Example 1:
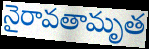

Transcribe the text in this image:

నైరావతామృత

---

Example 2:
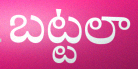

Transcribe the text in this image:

బట్టలా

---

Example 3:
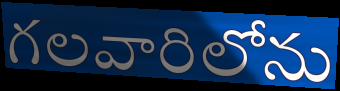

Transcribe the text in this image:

గలవారిలోను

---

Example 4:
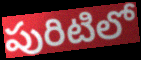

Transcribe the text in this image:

పురిటిలో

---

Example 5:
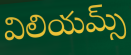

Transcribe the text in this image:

విలియమ్స్